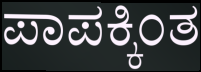
ಪಾಪಕ್ಕಿಂತ